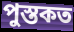
পুস্তকত